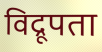
विद्रूपता